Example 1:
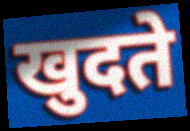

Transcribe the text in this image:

खुदते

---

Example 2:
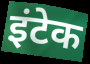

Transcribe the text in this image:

इंटेक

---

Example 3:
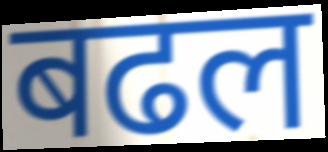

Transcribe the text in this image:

बढल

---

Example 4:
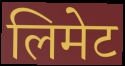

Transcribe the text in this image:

लिमेट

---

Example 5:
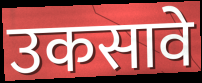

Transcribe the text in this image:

उकसावे